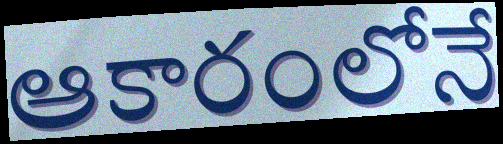
ఆకారంలోనే